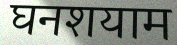
घनशयाम